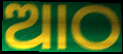
ଆଠ